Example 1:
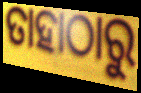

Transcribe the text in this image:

ତାହାଠାରୁ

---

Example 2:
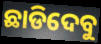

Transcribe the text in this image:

ଛାଡିଦେବୁ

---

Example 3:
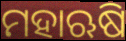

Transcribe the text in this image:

ମହାଋଷି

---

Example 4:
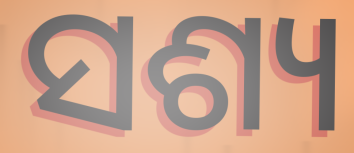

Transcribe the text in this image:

ସଶ୍ୟ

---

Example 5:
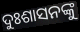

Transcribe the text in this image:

ଦୁଃଶାସନଙ୍କୁ